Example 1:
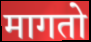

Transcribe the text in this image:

मागतो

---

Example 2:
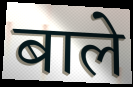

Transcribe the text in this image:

बाले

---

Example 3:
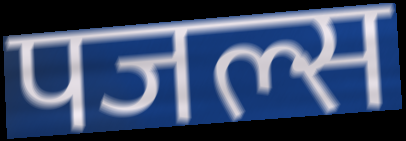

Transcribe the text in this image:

पजल्स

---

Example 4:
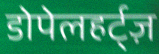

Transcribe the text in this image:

डोपेलहर्ट्ज़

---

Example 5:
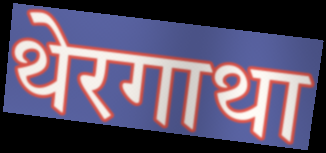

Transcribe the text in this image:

थेरगाथा